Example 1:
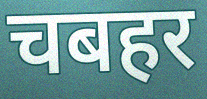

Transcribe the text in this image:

चबहर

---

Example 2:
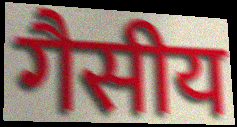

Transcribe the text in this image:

गैसीय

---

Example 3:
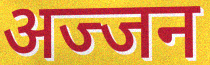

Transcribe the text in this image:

अज्जन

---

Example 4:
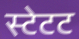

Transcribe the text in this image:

स्टेटट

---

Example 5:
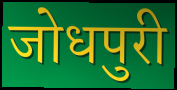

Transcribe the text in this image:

जोधपुरी